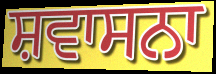
ਸ਼ਵਾਸਨਾ